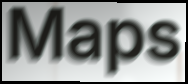
Maps